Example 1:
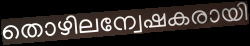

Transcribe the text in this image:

തൊഴിലന്വേഷകരായി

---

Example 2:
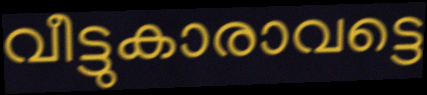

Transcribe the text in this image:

വീട്ടുകാരാവട്ടെ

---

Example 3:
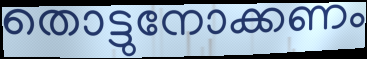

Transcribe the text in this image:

തൊട്ടുനോക്കണം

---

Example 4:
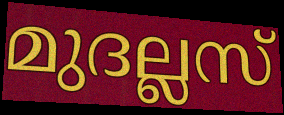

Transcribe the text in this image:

മുദല്ലസ്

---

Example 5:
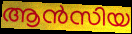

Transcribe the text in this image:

ആൻസിയ